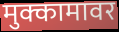
मुक्कामावर